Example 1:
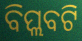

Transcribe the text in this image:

ବିପ୍ଲବଟି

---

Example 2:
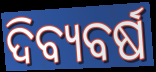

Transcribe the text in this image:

ଦିବ୍ୟବର୍ଷ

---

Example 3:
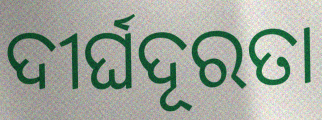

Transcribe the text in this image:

ଦୀର୍ଘଦୂରତା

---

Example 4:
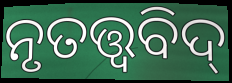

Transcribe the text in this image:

ନୃତତ୍ତ୍ଵବିଦ୍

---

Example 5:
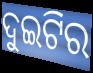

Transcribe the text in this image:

ଦୁଇଟିର